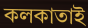
কলকাতাই